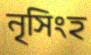
নৃসিংহ